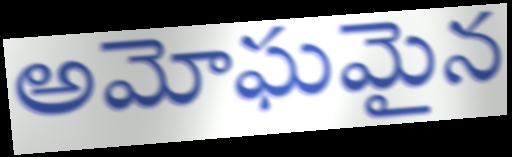
అమోఘమైన